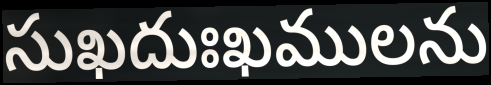
సుఖదుఃఖములను